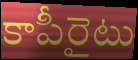
కాపీరైటు